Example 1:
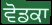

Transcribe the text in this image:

ਵੋਡਕਾ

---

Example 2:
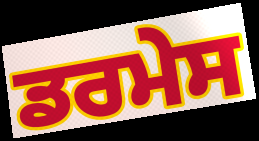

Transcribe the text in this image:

ਡਰਮੇਸ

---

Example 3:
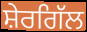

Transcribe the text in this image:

ਸ਼ੇਰਗਿੱਲ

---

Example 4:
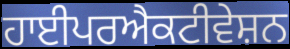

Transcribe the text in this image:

ਹਾਈਪਰਐਕਟੀਵੇਸ਼ਨ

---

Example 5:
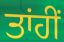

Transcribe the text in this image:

ਤਾਂਹੀਂ